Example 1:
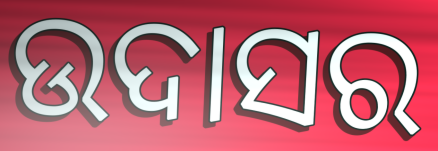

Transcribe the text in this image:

ଉଦାସର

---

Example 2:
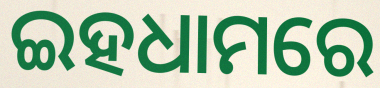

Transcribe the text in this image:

ଇହଧାମରେ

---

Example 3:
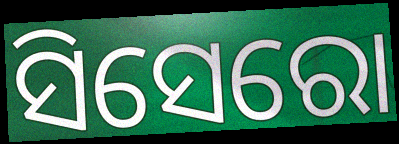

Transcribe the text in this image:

ସିସେରୋ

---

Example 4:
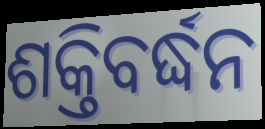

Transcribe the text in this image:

ଶକ୍ତିବର୍ଦ୍ଧନ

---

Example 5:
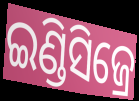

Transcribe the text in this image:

ଇଣ୍ଡିସିଜ୍ରେ